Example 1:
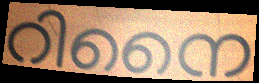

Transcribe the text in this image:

റിനൈ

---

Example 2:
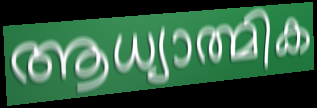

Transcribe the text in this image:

ആധ്യാത്മിക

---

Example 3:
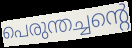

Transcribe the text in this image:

പെരുന്തച്ചന്റെ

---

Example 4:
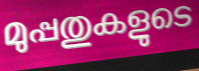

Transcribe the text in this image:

മുപ്പതുകളുടെ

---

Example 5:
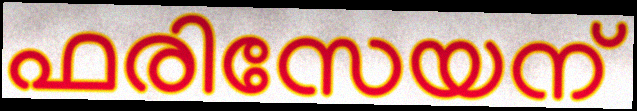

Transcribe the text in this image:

ഫരിസേയന്